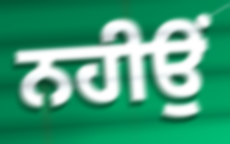
ਨਹੀਉਂ